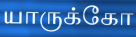
யாருக்கோ